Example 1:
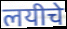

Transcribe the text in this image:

लयीचे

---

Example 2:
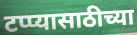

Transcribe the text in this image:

टप्प्यासाठीच्या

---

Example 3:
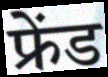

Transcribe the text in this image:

फ्रेंड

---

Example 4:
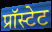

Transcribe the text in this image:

प्रॉस्टेट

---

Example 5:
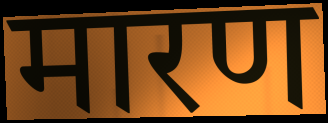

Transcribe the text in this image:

मारण